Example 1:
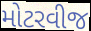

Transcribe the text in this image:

મોટરવીજ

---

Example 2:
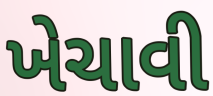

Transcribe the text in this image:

ખેચાવી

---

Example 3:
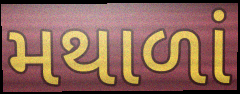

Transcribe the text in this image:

મથાળાં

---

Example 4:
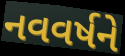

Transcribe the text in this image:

નવવર્ષને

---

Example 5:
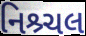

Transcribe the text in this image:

નિશ્ર્ચલ